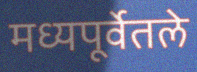
मध्यपूर्वेतले